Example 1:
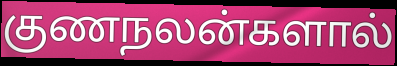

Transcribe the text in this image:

குணநலன்களால்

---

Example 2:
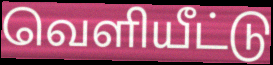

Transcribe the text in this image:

வெளியீட்டு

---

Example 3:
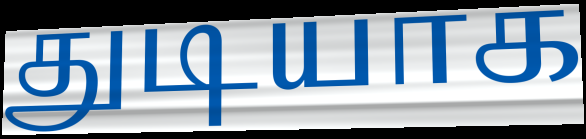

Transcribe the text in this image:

துடியாக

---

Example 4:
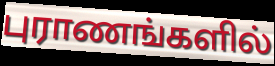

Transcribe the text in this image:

புராணங்களில்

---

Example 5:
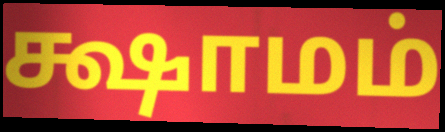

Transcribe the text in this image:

க்ஷாமம்